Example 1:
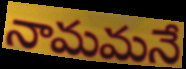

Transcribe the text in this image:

నామమనే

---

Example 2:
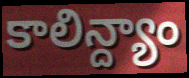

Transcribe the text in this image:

కాలిన్ద్యాం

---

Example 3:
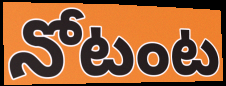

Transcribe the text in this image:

నోటంట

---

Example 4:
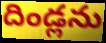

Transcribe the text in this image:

దిండ్లను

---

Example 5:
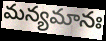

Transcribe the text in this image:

మన్యమానః